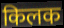
किलक